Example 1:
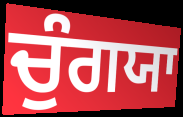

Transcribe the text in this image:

ਚੁੰਗਯਾ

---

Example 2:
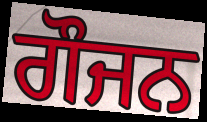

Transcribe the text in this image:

ਗੌਜਨ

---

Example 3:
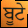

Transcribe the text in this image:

ਬੂਟੇ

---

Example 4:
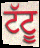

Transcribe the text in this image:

ਟੱਟੂ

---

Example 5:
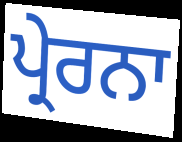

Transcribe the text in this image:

ਪ੍ਰੇਰਨਾ